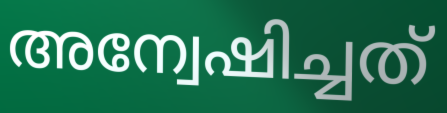
അന്വേഷിച്ചത്